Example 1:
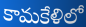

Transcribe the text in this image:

కామకేళిలో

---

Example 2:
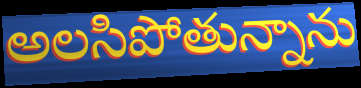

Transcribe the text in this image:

అలసిపోతున్నాను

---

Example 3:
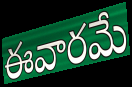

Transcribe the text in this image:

ఈవారమే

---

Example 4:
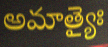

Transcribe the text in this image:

అమాత్యైః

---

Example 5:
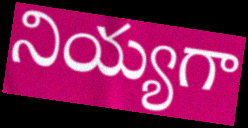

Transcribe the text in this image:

నియ్యగా